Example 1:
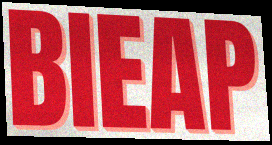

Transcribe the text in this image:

BIEAP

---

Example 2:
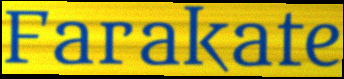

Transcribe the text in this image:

Farakate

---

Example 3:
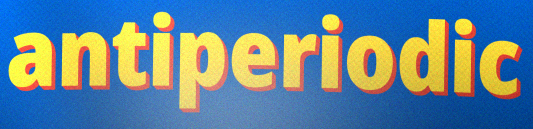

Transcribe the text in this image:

antiperiodic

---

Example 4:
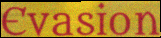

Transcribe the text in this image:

Evasion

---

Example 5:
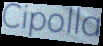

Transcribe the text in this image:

Cipolla